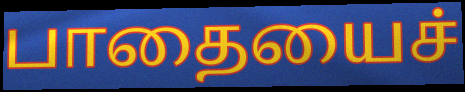
பாதையைச்